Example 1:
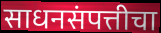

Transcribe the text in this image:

साधनसंपत्तीचा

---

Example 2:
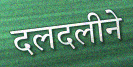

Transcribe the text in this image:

दलदलीने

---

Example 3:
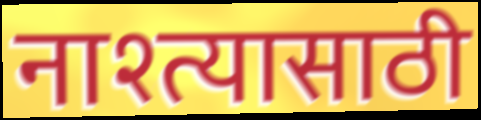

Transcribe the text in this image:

नाश्त्यासाठी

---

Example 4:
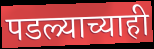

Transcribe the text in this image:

पडल्याच्याही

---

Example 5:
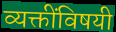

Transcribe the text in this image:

व्यक्तींविषयी